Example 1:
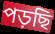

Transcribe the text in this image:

পড়ছি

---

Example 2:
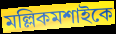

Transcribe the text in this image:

মল্লিকমশাইকে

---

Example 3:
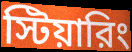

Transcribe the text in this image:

স্টিয়ারিং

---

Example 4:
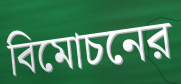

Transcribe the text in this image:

বিমোচনের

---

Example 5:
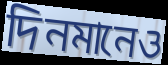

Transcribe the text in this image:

দিনমানেও